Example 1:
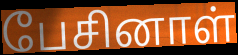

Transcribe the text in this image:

பேசினாள்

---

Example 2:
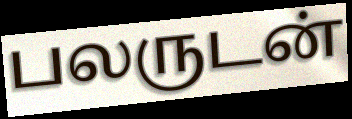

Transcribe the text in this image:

பலருடன்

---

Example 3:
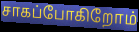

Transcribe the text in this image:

சாகப்போகிறோம்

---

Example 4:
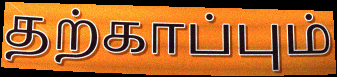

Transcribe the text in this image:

தற்காப்பும்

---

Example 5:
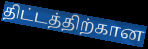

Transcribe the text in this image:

திட்டத்திற்கான